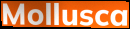
Mollusca